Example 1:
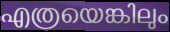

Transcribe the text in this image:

എത്രയെങ്കിലും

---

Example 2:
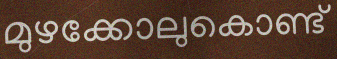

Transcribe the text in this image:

മുഴക്കോലുകൊണ്ട്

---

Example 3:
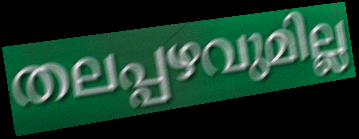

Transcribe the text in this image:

തലപ്പഴവുമില്ല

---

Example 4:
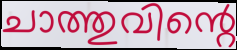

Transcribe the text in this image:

ചാത്തുവിന്റെ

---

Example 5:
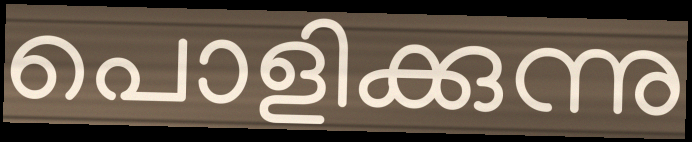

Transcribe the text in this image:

പൊളിക്കുന്നു